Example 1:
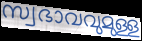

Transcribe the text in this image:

സ്വഭാവവുമുള്ള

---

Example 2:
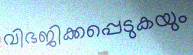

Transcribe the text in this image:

വിഭജിക്കപ്പെടുകയും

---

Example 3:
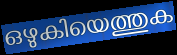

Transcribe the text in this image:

ഒഴുകിയെത്തുക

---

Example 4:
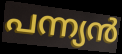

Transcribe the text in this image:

പന്ന്യൻ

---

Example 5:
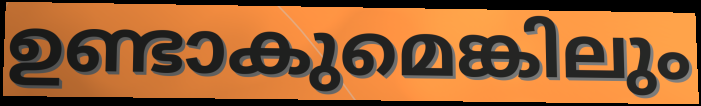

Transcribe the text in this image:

ഉണ്ടാകുമെങ്കിലും